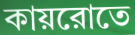
কায়রোতে